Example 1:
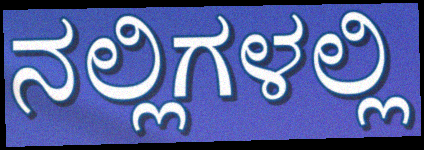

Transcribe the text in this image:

ನಲ್ಲಿಗಳಲ್ಲಿ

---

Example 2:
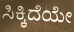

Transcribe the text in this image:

ಸಿಕ್ಕಿದೆಯೇ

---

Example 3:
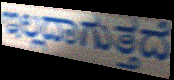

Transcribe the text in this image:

ಇಲ್ಲದಾಗುತ್ತದೆ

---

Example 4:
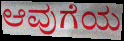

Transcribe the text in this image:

ಆವುಗೆಯ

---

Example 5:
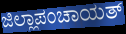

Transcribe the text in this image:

ಜಿಲ್ಲಾಪಂಚಾಯತ್